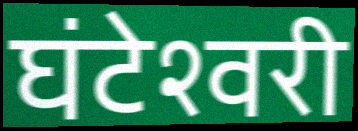
घंटेश्वरी